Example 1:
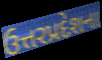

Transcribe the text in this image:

ઉત્તરપ્રદેશના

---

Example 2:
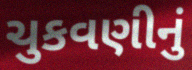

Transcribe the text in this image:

ચુકવણીનું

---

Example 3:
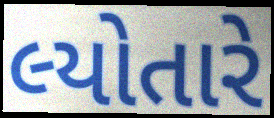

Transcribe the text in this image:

લ્યોતારે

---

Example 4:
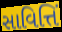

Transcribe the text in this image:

સાવિત્તિં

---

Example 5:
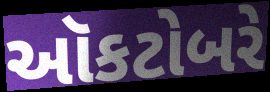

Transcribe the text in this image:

ઑકટોબરે